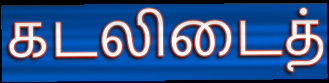
கடலிடைத்